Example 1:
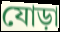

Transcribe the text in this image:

যোড়া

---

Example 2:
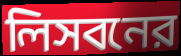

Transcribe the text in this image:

লিসবনের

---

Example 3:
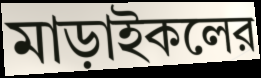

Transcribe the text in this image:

মাড়াইকলের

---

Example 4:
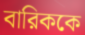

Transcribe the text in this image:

বারিককে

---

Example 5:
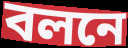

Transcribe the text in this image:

বলনে